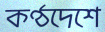
কণ্ঠদেশে